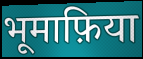
भूमाफ़िया